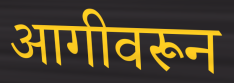
आगीवरून